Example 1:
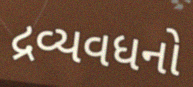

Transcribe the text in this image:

દ્રવ્યવધનો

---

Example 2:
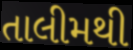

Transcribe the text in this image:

તાલીમથી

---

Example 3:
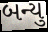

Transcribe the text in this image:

બન્યુ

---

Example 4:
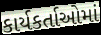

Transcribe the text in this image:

કાર્યકર્તાઓમાં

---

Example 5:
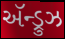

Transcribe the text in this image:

ઍન્ડ્રુઝ